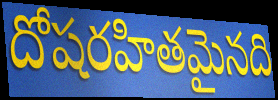
దోషరహితమైనది